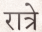
रात्रे